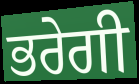
ਭਰੇਗੀ